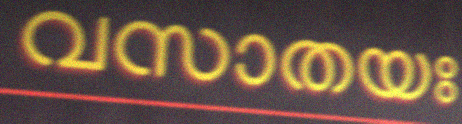
വസാതയഃ